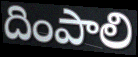
దింపాలి